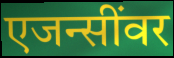
एजन्सींवर